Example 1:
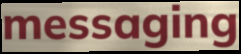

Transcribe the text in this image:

messaging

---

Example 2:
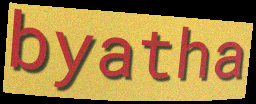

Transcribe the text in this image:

byatha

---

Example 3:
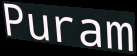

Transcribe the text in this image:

Puram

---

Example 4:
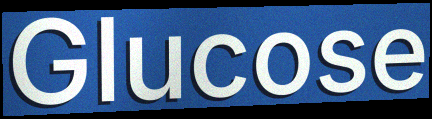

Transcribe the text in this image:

Glucose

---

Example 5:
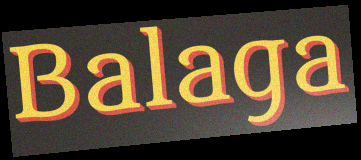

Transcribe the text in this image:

Balaga